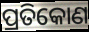
ପ୍ରତିକୋଣ